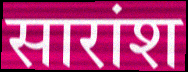
सारांश